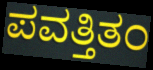
ಪವತ್ತಿತಂ